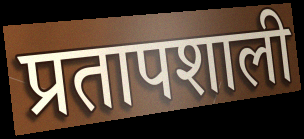
प्रतापशाली